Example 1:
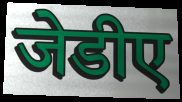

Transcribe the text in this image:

जेडीए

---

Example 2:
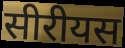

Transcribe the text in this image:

सीरीयस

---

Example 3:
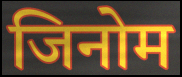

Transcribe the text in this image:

जिनोम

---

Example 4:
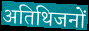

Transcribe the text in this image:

अतिथिजनों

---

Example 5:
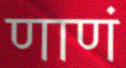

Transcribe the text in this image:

णाणं